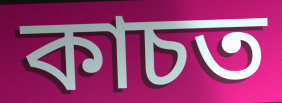
কাচত